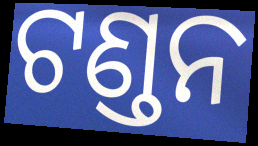
ଟଣ୍ଡନ